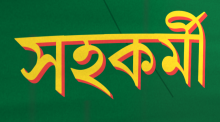
সহকৰ্মী